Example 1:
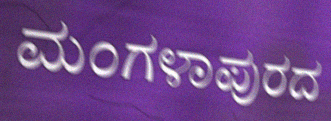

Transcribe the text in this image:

ಮಂಗಳಾಪುರದ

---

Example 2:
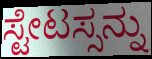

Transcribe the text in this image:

ಸ್ಟೇಟಸ್ಸನ್ನು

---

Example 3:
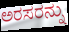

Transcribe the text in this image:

ಅರಸರನ್ನು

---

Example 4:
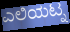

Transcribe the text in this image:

ಎಲಿಯಟ್ನ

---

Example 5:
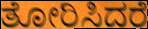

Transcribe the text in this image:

ತೋರಿಸಿದರೆ